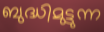
ബുദ്ധിമുട്ടുന്ന